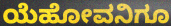
ಯೆಹೋವನಿಗೂ